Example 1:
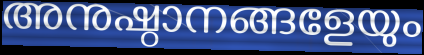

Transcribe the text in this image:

അനുഷ്ഠാനങ്ങളേയും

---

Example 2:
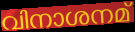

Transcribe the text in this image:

വിനാശനമ്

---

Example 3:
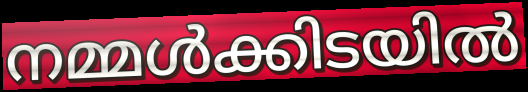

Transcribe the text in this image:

നമ്മൾക്കിടയിൽ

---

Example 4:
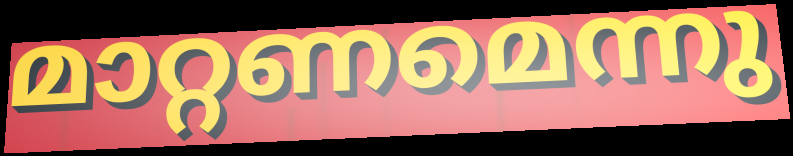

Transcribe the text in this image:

മാറ്റണമെന്നു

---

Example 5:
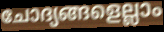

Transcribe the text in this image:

ചോദ്യങ്ങളെല്ലാം